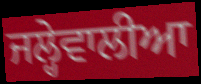
ਜਲ੍ਹੇਵਾਲੀਆ